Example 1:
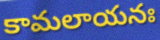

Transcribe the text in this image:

కామలాయనః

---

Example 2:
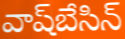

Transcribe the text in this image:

వాష్‌బేసిన్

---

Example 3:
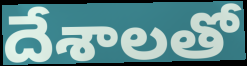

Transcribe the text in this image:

దేశాలతో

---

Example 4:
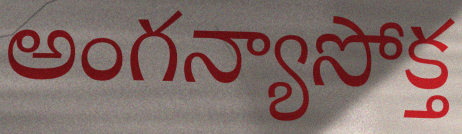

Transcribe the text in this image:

అంగన్యాసోక్త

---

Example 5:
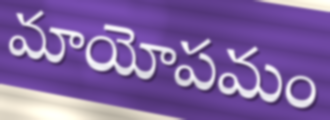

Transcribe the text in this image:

మాయోపమం